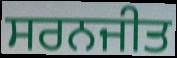
ਸਰਨਜੀਤ